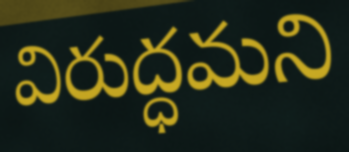
విరుద్ధమని